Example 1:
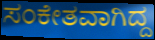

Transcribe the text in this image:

ಸಂಕೇತವಾಗಿದ್ದ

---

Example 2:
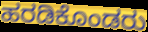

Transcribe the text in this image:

ಹರಡಿಕೊಂಡರು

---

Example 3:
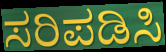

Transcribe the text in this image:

ಸರಿಪಡಿಸಿ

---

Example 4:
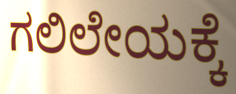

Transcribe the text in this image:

ಗಲಿಲೇಯಕ್ಕೆ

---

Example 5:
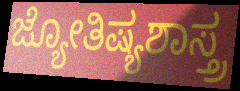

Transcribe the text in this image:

ಜ್ಯೋತಿಷ್ಯಶಾಸ್ತ್ರ